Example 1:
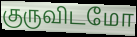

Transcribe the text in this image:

குருவிடமோ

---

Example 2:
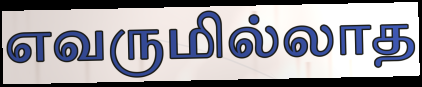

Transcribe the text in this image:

எவருமில்லாத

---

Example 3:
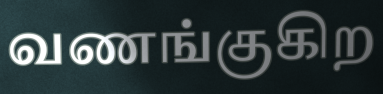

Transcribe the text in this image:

வணங்குகிற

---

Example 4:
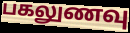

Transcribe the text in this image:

பகலுணவு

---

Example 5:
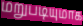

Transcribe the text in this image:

மறுபடியுமாக